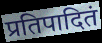
प्रतिपादितं